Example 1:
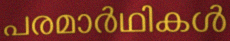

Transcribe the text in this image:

പരമാർഥികൾ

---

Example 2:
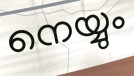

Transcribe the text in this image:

നെയ്യും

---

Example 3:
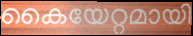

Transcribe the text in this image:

കൈയേറ്റമായി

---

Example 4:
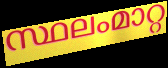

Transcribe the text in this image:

സ്ഥലംമാറ്റ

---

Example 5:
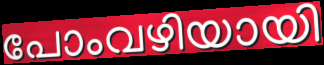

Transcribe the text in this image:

പോംവഴിയായി